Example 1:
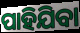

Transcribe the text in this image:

ପାହିଯିବା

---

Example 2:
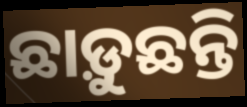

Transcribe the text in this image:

ଛାଡ଼ୁଛନ୍ତି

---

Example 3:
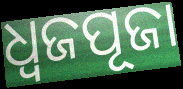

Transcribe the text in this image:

ଧ୍ୱଜପୂଜା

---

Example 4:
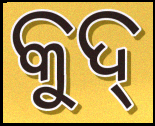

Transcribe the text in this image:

କୁଦ୍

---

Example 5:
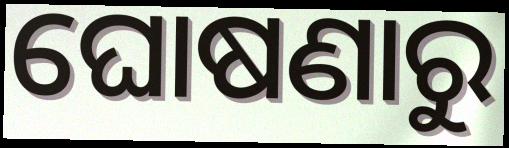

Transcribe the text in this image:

ଘୋଷଣାରୁ